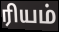
ரியம்